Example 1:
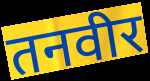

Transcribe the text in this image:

तनवीर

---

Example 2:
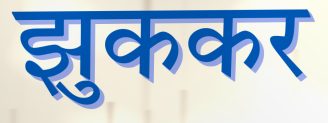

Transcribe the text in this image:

झुककर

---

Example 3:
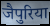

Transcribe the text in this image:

जैपुरिया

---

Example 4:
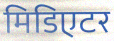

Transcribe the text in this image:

मिडिएटर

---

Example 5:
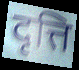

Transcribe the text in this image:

दृत्ति